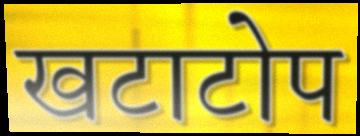
खटाटोप